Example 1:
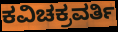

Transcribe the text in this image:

ಕವಿಚಕ್ರವರ್ತಿ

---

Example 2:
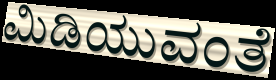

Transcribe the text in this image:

ಮಿಡಿಯುವಂತೆ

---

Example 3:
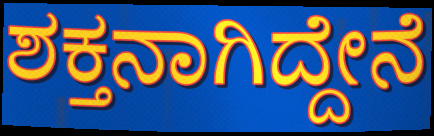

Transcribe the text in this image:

ಶಕ್ತನಾಗಿದ್ದೇನೆ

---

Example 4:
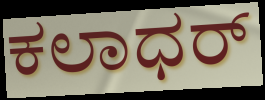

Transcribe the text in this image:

ಕಲಾಧರ್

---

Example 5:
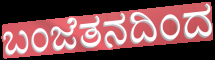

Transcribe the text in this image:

ಬಂಜೆತನದಿಂದ